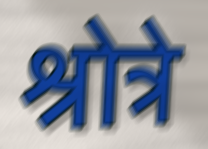
श्रोत्रे